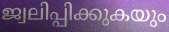
ജ്വലിപ്പിക്കുകയും